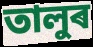
তালুৰ